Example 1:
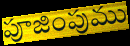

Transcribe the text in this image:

పూజింపుము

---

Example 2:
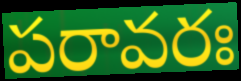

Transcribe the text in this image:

పరావరః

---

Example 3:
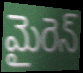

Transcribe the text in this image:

మైరెన్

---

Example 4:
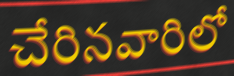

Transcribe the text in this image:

చేరినవారిలో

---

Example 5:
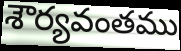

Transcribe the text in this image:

శౌర్యవంతము